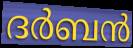
ദർബൻ